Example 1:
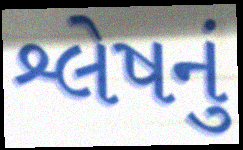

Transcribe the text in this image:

શ્લેષનું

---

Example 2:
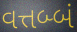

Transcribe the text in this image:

વત્તબ્બં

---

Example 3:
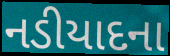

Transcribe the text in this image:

નડીયાદના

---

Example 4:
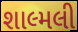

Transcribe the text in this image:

શાલ્મલી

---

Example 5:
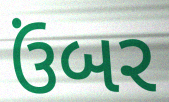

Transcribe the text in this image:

ઉંબર